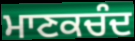
ਮਾਣਕਚੰਦ